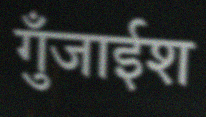
गुँजाईश